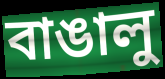
বাঙালু